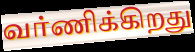
வர்ணிக்கிறது